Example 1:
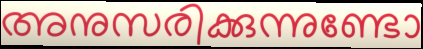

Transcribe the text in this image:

അനുസരിക്കുന്നുണ്ടോ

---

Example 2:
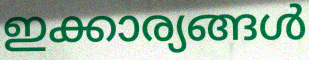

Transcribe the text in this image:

ഇക്കാര്യങ്ങൾ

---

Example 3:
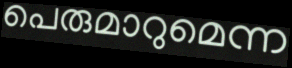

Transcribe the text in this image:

പെരുമാറുമെന്ന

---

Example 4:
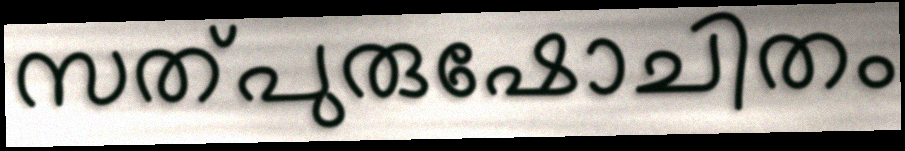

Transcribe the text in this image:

സത്പുരുഷോചിതം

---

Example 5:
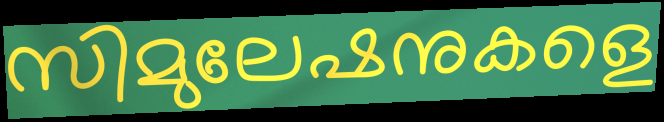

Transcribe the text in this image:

സിമുലേഷനുകളെ